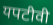
यपटीवी